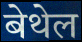
बेथेल